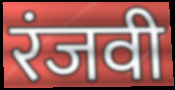
रंजवी